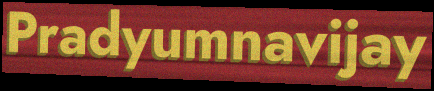
Pradyumnavijay